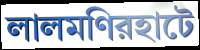
লালমণিরহাটে